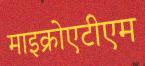
माइक्रोएटीएम